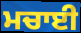
ਮਚਾਈ